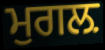
ਮੁਗਲ਼